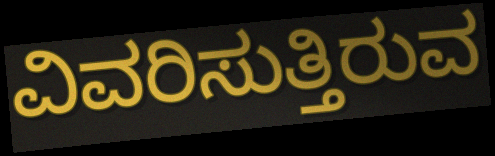
ವಿವರಿಸುತ್ತಿರುವ